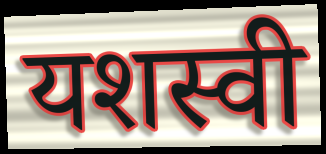
यशस्वी